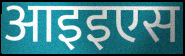
आइइएस